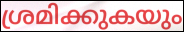
ശ്രമിക്കുകയും